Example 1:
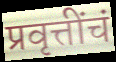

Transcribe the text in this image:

प्रवृत्तींचं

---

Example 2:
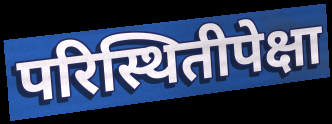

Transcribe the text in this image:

परिस्थितीपेक्षा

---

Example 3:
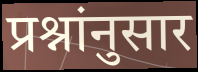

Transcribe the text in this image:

प्रश्नांनुसार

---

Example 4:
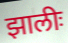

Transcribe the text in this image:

झालीः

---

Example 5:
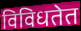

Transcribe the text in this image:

विविधतेत